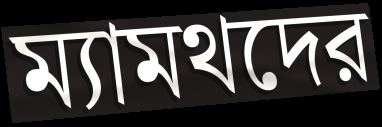
ম্যামথদের